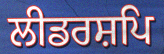
ਲੀਡਰਸ਼ਪਿ